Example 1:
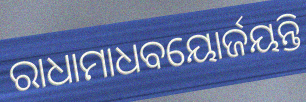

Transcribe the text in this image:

ରାଧାମାଧବୟୋର୍ଜୟନ୍ତି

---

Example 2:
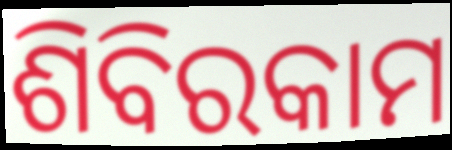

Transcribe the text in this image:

ଶିବିରକାମ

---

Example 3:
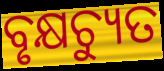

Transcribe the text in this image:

ବୃକ୍ଷଚ୍ଯୁତ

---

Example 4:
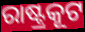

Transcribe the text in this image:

ରାଷ୍ଟ୍ରକୂଟ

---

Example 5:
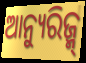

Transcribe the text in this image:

ଆନ୍ୟୁରିଜ୍ମ୍